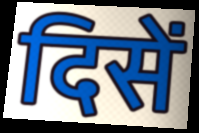
दिसें